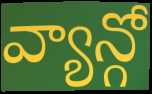
వ్యాన్గో